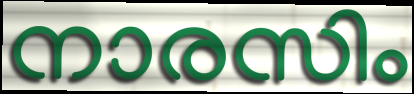
നാരസിം